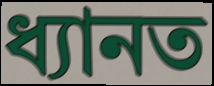
ধ্যানত